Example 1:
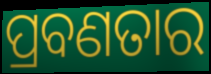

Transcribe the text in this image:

ପ୍ରବଣତାର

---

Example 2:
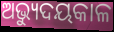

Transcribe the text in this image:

ଅଭ୍ୟୁଦୟକାଳ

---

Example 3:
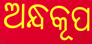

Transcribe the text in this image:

ଅନ୍ଧକୂପ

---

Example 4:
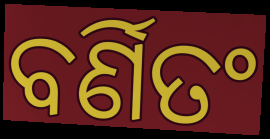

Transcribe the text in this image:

ବର୍ଣିତଂ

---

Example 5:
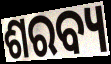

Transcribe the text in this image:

ଶରବ୍ୟ